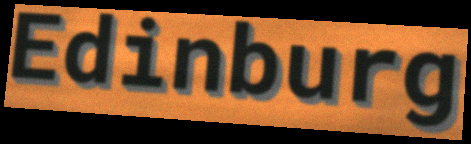
Edinburg